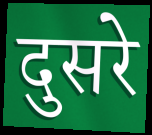
दुसरे